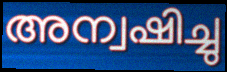
അന്വഷിച്ചു